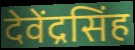
देवेंद्रसिंह